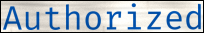
Authorized